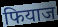
फियाज